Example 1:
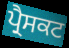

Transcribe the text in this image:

ਪ੍ਰੈਸਕਟ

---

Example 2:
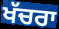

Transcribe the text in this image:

ਖੱਚਰਾ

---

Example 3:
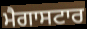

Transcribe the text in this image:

ਮੈਗਾਸਟਾਰ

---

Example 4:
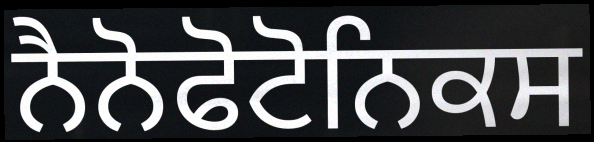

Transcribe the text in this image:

ਨੈਨੋਫੋਟੋਨਿਕਸ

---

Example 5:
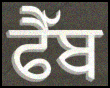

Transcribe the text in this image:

ਫੈੱਬ